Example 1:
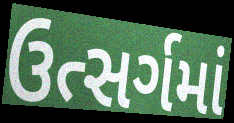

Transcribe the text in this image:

ઉત્સર્ગમાં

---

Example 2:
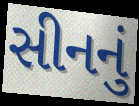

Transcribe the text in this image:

સીનનું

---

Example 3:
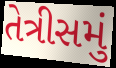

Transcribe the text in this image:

તેત્રીસમું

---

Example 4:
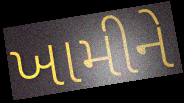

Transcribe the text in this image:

ખામીને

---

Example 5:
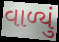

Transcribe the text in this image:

વાળ્યું